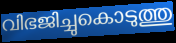
വിഭജിച്ചുകൊടുത്തു